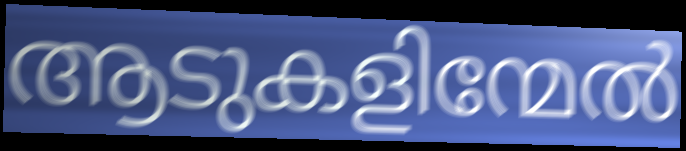
ആടുകളിന്മേൽ